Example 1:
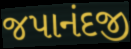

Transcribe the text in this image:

જપાનંદજી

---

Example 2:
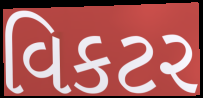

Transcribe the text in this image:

વિકટર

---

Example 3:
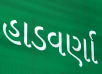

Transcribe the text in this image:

હાડવર્ણા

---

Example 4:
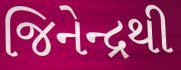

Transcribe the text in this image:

જિનેન્દ્રથી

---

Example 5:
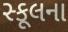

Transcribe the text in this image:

સ્કૂલના